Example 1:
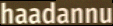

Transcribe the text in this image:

haadannu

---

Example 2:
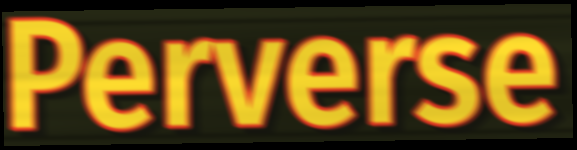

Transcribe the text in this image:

Perverse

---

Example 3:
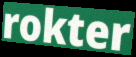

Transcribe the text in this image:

rokter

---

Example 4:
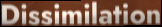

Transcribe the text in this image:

Dissimilation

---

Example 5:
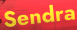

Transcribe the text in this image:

Sendra